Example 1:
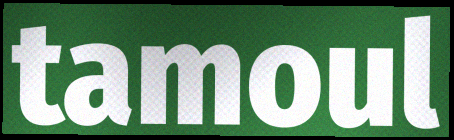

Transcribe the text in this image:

tamoul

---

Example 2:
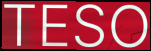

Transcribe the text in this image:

TESO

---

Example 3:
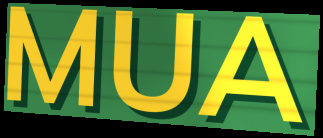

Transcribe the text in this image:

MUA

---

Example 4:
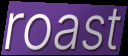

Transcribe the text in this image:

roast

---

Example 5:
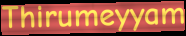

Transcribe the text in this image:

Thirumeyyam